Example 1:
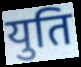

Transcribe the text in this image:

युति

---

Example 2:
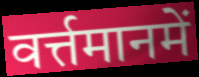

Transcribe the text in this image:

वर्त्तमानमें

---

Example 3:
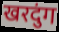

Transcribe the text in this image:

खरदुंग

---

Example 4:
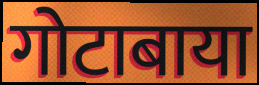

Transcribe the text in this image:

गोटाबाया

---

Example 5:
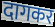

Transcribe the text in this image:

दागकर